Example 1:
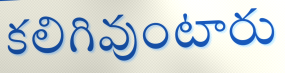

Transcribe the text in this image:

కలిగివుంటారు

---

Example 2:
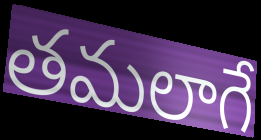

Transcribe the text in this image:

తమలాగే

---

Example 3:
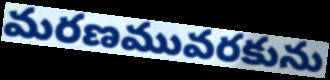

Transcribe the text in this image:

మరణమువరకును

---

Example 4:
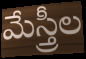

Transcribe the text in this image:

మేస్త్రీల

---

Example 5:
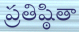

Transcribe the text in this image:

ప్రతిష్ఠితా